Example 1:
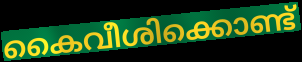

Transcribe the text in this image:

കൈവീശിക്കൊണ്ട്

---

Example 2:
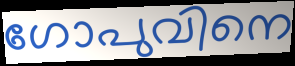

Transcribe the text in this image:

ഗോപുവിനെ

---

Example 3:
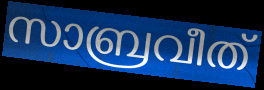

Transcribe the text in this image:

സാബ്രവീത്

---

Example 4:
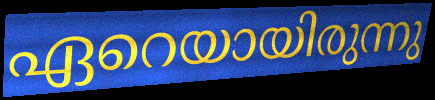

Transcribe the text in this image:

ഏറെയായിരുന്നു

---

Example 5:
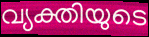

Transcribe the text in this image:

വ്യക്തിയുടെ